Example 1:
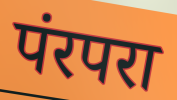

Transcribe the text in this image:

पंरपरा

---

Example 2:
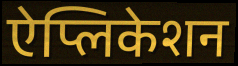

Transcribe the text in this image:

ऐप्लिकेशन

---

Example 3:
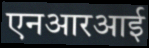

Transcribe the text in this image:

एनआरआई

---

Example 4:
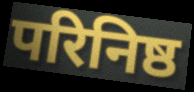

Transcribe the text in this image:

परिनिष्ठ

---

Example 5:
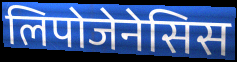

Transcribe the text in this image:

लिपोजेनेसिस